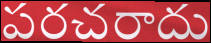
పరచరాదు